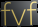
fvf